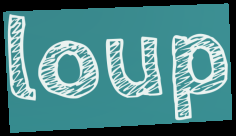
loup